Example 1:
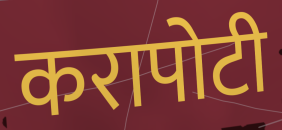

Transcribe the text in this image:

करापोटी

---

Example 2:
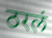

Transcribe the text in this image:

ठरलं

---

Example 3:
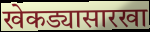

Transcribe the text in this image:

खेकड्यासारखा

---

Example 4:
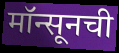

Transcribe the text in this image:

मॉन्सूनची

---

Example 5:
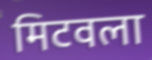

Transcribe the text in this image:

मिटवला